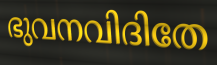
ഭുവനവിദിതേ